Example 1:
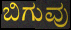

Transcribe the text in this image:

ಬಿಗುವು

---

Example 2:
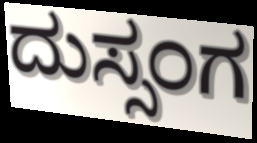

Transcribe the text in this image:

ದುಸ್ಸಂಗ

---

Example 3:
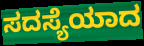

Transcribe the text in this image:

ಸದಸ್ಯೆಯಾದ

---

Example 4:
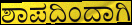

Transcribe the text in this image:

ಶಾಪದಿಂದಾಗಿ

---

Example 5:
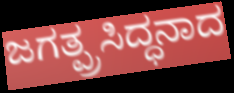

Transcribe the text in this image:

ಜಗತ್ಪ್ರಸಿದ್ಧನಾದ